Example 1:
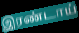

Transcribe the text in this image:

இரண்டாய்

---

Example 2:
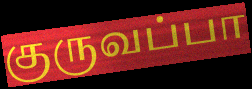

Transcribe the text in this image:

குருவப்பா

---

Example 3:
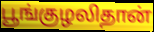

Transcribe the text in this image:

பூங்குழலிதான்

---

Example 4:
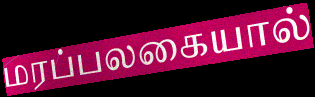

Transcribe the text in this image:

மரப்பலகையால்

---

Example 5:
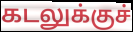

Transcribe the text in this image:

கடலுக்குச்